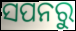
ସପନରୁ